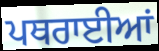
ਪਥਰਾਈਆਂ